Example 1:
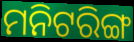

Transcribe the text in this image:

ମନିଟରିଙ୍ଗ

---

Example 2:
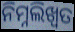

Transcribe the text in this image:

ନିମ୍ନଲିଖ୍ବତ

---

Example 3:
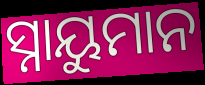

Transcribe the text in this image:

ସ୍ନାୟୁମାନ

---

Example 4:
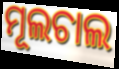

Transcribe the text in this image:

ମୂଲଚାଲ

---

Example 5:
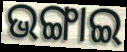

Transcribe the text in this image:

ଭଙ୍ଗାଇ